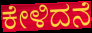
ಕೇಳಿದನೆ